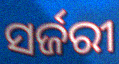
ସର୍ଜରୀ